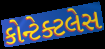
કોન્ટેક્ટલેસ